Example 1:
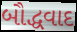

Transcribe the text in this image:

બૌદ્ધવાદ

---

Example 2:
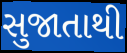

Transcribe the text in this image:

સુજાતાથી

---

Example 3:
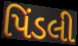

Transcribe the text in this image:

પિંડલી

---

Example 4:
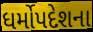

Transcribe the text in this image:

ધર્મોપદેશના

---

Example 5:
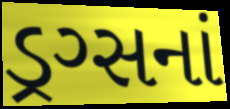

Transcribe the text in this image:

ડ્રગ્સનાં